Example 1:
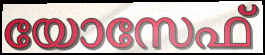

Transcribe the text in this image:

യോസേഫ്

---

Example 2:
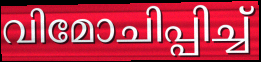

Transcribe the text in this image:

വിമോചിപ്പിച്ച്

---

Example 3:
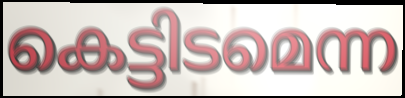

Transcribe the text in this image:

കെട്ടിടമെന്ന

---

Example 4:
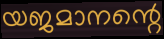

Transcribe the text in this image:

യജമാനന്റെ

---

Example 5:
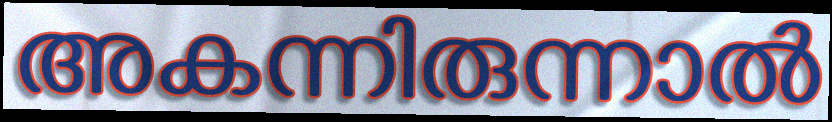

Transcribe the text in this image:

അകന്നിരുന്നാൽ